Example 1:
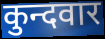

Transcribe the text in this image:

कुन्दवार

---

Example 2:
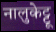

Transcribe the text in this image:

नालुकेट्टू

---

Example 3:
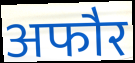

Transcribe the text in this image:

अफौर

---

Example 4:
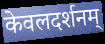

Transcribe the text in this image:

केवलदर्शनम्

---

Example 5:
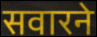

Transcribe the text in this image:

सवारने